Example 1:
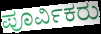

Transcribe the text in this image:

ಪೂರ್ವಿಕರು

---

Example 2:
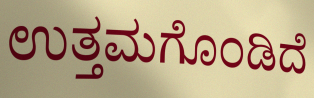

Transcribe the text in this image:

ಉತ್ತಮಗೊಂಡಿದೆ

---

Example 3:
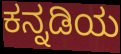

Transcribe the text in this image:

ಕನ್ನಡಿಯ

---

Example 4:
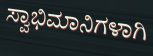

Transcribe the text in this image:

ಸ್ವಾಭಿಮಾನಿಗಳಾಗಿ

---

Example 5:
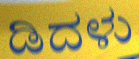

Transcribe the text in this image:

ಡಿದಳು